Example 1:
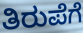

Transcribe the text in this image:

ತಿರುಪೆಗೆ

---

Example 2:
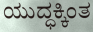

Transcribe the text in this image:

ಯುದ್ಧಕ್ಕಿಂತ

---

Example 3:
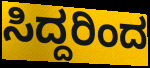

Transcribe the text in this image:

ಸಿದ್ದರಿಂದ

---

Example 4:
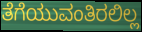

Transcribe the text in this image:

ತೆಗೆಯುವಂತಿರಲಿಲ್ಲ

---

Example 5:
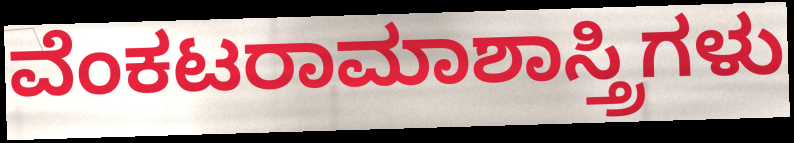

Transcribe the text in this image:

ವೆಂಕಟರಾಮಾಶಾಸ್ತ್ರಿಗಳು